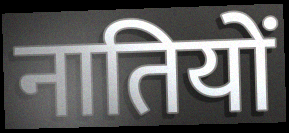
नातियों